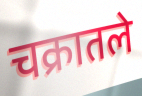
चक्रातले